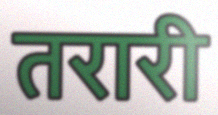
तरारी